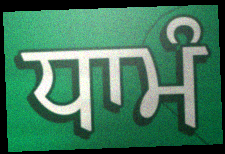
ਧਾਮੰ